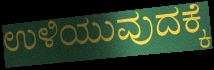
ಉಳಿಯುವುದಕ್ಕೆ